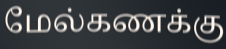
மேல்கணக்கு